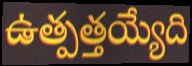
ఉత్పత్తయ్యేది